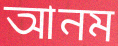
আনম